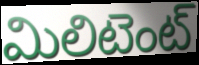
మిలిటెంట్